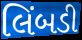
લિંબડી